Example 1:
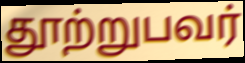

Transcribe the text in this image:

தூற்றுபவர்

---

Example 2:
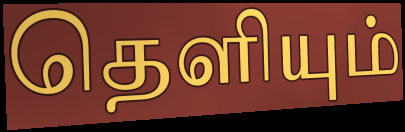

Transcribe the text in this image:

தெளியும்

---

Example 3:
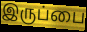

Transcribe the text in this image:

இருப்பை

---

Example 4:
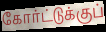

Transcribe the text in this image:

கோர்ட்டுக்குப்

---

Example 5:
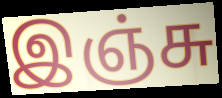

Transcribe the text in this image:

இஞ்சு